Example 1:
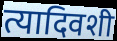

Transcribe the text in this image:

त्यादिवशी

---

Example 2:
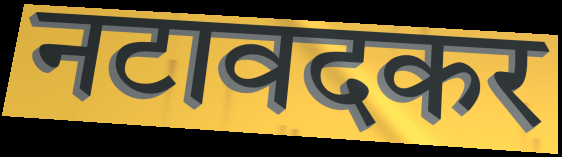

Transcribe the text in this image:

नटावदकर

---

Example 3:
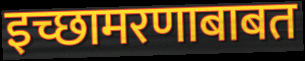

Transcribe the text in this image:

इच्छामरणाबाबत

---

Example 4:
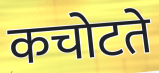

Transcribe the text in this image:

कचोटते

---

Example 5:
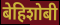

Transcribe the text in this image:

बेहिशोबी